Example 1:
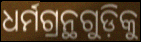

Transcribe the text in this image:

ଧର୍ମଗ୍ରନ୍ଥଗୁଡ଼ିକୁ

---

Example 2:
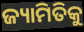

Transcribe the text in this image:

ଜ୍ୟାମିତିକୁ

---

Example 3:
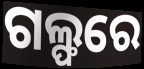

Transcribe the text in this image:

ଗଲ୍ଫରେ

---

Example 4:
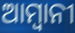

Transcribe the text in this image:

ଆମ୍ବାନୀ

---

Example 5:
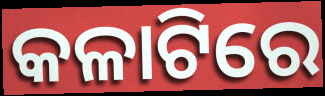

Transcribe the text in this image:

କଳାଟିରେ